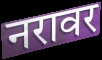
नरावर